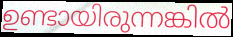
ഉണ്ടായിരുന്നങ്കിൽ